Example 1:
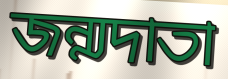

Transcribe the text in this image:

জন্মদাতা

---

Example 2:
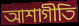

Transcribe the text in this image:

আশাগীতি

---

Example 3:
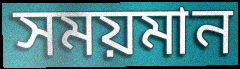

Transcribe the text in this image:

সময়মান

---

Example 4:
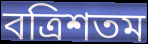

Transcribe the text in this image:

বত্রিশতম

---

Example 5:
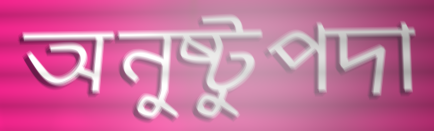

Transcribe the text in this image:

অনুষ্টুপদা